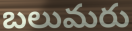
బలుమరు